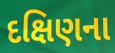
દક્ષિણના